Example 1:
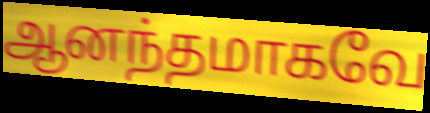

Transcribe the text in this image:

ஆனந்தமாகவே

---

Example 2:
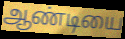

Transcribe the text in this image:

ஆண்டியை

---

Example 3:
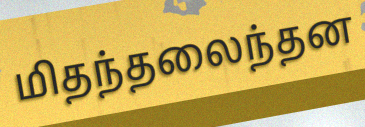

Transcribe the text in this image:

மிதந்தலைந்தன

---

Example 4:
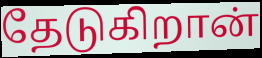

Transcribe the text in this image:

தேடுகிறான்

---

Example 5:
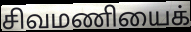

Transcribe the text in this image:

சிவமணியைக்